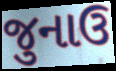
જુનાઉ